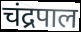
चंद्रपाल